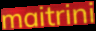
maitrini